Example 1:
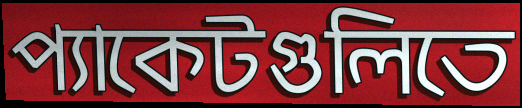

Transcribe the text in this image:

প্যাকেটগুলিতে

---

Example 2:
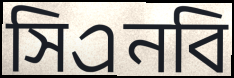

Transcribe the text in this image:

সিএনবি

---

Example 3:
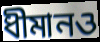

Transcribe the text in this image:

ধীমানও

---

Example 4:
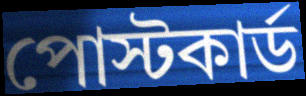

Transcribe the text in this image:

পোস্টকার্ড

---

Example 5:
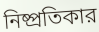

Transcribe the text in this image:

নিষ্প্রতিকার